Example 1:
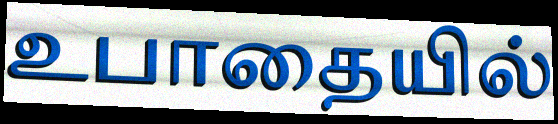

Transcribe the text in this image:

உபாதையில்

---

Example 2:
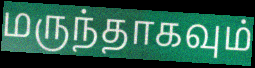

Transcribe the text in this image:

மருந்தாகவும்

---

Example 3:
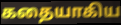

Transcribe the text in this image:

கதையாகிய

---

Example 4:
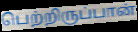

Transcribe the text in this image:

பெற்றிருப்பான்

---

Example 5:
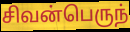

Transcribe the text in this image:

சிவன்பெருந்